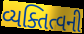
વ્યક્તિત્વની